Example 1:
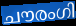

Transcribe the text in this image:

ചൗരംഗി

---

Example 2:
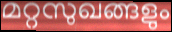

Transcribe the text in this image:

മറ്റസുഖങ്ങളും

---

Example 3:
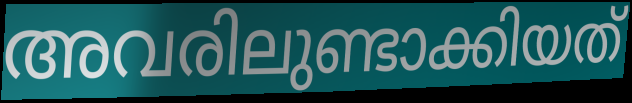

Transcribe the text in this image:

അവരിലുണ്ടാക്കിയത്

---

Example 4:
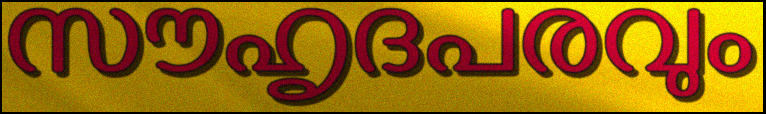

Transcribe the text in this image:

സൗഹൃദപരവും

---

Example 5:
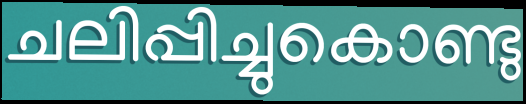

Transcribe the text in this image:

ചലിപ്പിച്ചുകൊണ്ടു